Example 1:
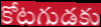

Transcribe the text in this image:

కోటగుడకు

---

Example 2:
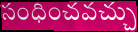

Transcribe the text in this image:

సంధించవచ్చు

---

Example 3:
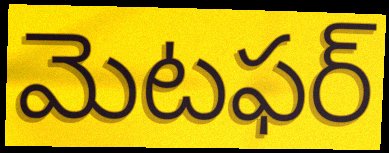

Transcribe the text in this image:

మెటఫర్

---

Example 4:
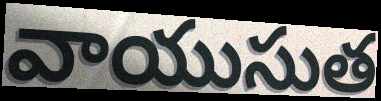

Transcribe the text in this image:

వాయుసుత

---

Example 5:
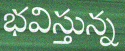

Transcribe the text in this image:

భవిస్తున్న